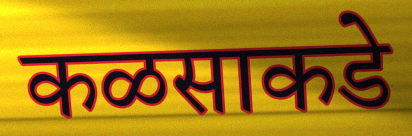
कळसाकडे